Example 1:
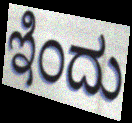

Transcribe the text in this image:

ಇಿಂದು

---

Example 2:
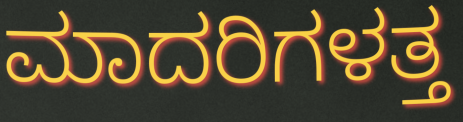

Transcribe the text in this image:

ಮಾದರಿಗಳತ್ತ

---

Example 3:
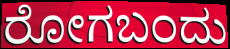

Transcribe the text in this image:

ರೋಗಬಂದು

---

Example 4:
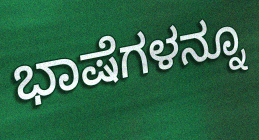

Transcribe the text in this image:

ಭಾಷೆಗಳನ್ನೂ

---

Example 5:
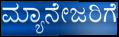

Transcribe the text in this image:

ಮ್ಯಾನೇಜರಿಗೆ